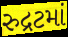
રુદ્રટમાં